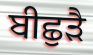
ਬੀਛੁੜੈ